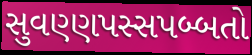
સુવણ્ણપસ્સપબ્બતો